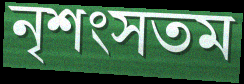
নৃশংসতম